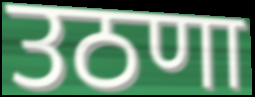
उठणा